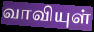
வாவியுள்